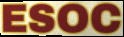
ESOC